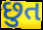
છુત